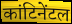
कांटिनेंटल